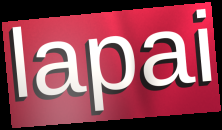
lapai